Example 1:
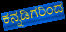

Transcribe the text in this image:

ಕನ್ನಡಿಗರಿಂದ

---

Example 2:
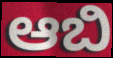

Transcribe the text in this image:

ಆಬಿ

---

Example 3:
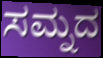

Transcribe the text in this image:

ಸಮ್ನದ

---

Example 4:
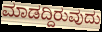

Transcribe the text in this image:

ಮಾಡದ್ದಿರುವುದು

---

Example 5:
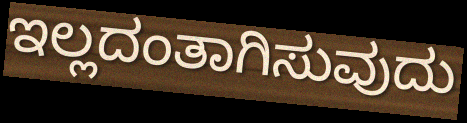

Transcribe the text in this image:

ಇಲ್ಲದಂತಾಗಿಸುವುದು